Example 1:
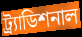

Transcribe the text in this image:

ট্র্যাডিশনাল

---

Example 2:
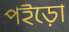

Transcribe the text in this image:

পইড়ো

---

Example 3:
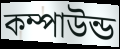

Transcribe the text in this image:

কম্পাউন্ড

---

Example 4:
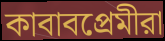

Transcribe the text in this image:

কাবাবপ্রেমীরা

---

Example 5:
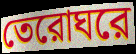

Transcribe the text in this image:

তেরোঘরে